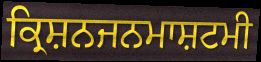
ਕ੍ਰਿਸ਼ਨਜਨਮਾਸ਼ਟਮੀ